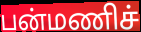
பன்மணிச்